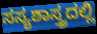
ಸಸ್ಯಶಾಸ್ತ್ರದಲ್ಲಿ